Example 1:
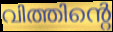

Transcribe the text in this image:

വിത്തിന്റെ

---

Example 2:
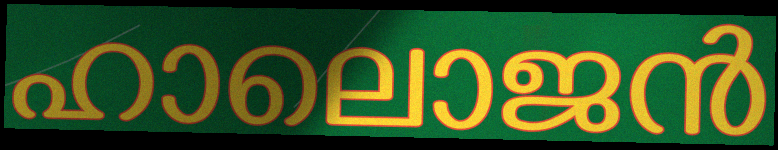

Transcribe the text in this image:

ഹാലൊജൻ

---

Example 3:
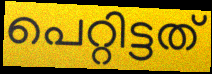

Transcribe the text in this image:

പെറ്റിട്ടത്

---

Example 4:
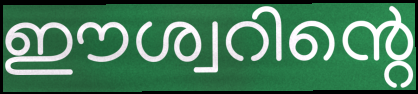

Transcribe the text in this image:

ഈശ്വറിന്റെ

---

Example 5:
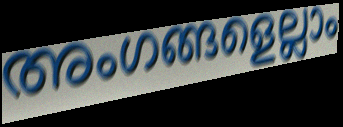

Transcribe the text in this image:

അംഗങ്ങളെല്ലാം